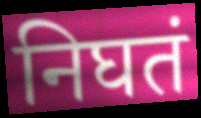
निघतं